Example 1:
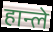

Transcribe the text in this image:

हान्ले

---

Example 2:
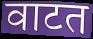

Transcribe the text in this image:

वाटत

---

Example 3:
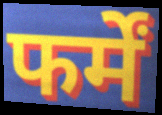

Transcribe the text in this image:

फर्में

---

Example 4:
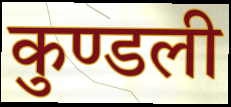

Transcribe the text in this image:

कुण्डली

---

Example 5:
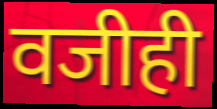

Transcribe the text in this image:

वजीही